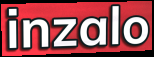
inzalo